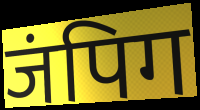
जंपिग